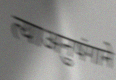
त्याअनुषंगाने